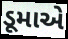
ડૂમાએ